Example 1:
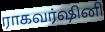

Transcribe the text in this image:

ராகவர்ஷினி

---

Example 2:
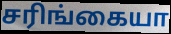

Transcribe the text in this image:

சரிங்கையா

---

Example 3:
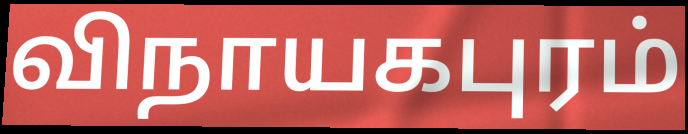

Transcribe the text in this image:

விநாயகபுரம்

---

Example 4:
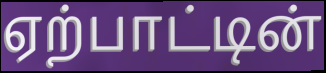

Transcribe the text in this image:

ஏற்பாட்டின்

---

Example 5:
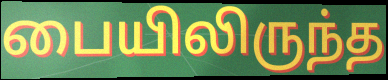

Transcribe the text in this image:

பையிலிருந்த